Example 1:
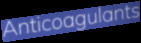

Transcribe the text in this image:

Anticoagulants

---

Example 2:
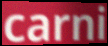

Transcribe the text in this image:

carni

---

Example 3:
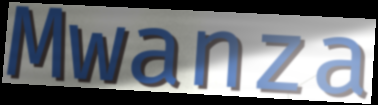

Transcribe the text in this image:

Mwanza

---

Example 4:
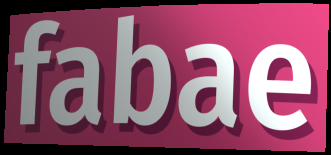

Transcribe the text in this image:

fabae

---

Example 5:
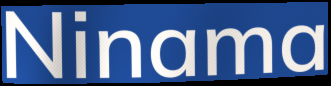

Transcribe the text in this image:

Ninama